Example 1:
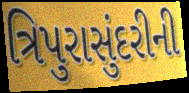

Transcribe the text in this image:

ત્રિપુરાસુંદરીની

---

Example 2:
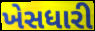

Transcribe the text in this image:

ખેસધારી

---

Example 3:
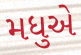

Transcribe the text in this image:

મધુએ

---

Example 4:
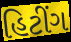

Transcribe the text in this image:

હિટીંગ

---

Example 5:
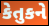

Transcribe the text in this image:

કેતુકને